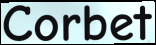
Corbet